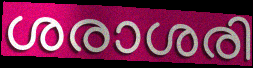
ശരാശരി